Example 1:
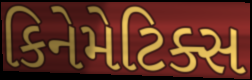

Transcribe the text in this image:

કિનેમેટિક્સ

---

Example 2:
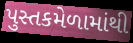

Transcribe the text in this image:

પુસ્તકમેળામાંથી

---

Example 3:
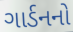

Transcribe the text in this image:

ગાર્ડનનો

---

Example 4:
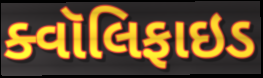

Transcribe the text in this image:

ક્વૉલિફાઇડ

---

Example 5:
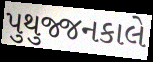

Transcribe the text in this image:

પુથુજ્જનકાલે